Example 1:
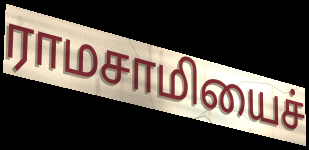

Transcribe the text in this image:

ராமசாமியைச்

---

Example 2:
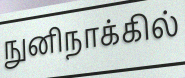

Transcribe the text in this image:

நுனிநாக்கில்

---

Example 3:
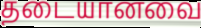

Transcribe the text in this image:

தடையானவை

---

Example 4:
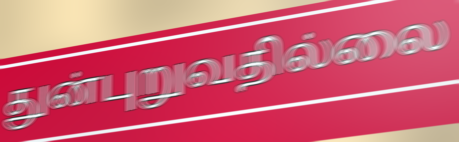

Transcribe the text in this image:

துன்புறுவதில்லை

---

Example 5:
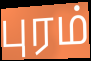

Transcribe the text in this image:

புரம்